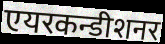
एयरकन्डीशनर